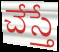
చేస్తే